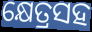
କ୍ଷେତ୍ରସହ